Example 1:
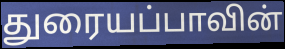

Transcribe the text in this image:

துரையப்பாவின்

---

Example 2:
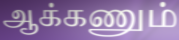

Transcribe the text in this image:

ஆக்கணும்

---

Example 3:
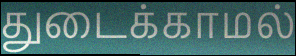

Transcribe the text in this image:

துடைக்காமல்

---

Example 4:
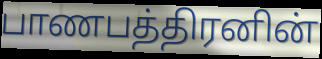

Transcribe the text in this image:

பாணபத்திரனின்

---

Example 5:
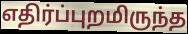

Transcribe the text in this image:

எதிர்ப்புறமிருந்த